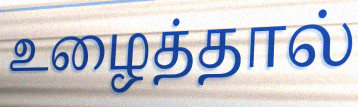
உழைத்தால்